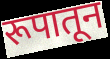
रूपातून